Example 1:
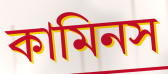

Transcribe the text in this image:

কামিনস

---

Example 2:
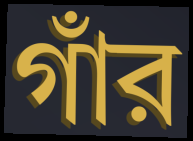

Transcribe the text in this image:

গাঁর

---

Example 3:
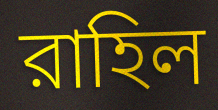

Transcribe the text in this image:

রাহিল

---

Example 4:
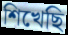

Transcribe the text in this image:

শিখেছি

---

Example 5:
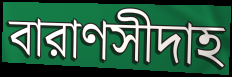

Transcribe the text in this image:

বারাণসীদাহ